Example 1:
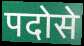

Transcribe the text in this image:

पदोसे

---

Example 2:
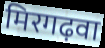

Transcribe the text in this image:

मिरगढ़वा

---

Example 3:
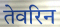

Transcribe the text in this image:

तेवरिन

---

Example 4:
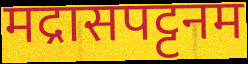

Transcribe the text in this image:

मद्रासपट्टनम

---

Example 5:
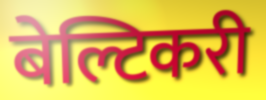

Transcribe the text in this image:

बेल्टिकरी